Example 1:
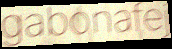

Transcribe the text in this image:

gabonafej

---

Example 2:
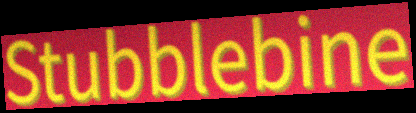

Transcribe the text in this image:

Stubblebine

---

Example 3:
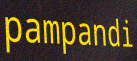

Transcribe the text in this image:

pampandi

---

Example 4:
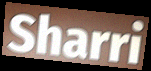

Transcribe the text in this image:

Sharri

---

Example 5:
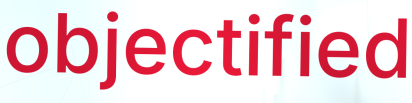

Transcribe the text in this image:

objectified